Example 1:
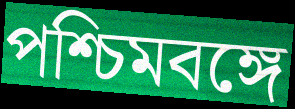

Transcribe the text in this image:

পশ্চিমবঙ্গে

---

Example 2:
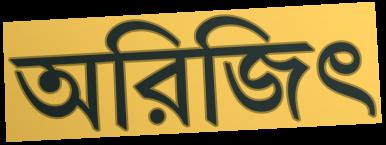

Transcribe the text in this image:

অরিজিৎ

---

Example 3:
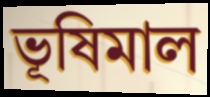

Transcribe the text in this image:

ভূষিমাল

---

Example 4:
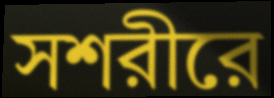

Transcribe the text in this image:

সশরীরে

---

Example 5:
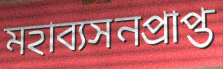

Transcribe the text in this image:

মহাব্যসনপ্রাপ্ত